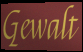
Gewalt